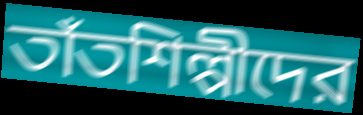
তাঁতশিল্পীদের